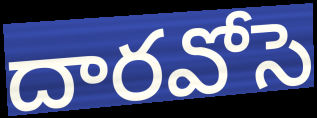
దారవోసె